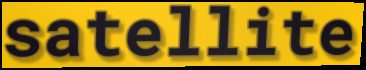
satellite